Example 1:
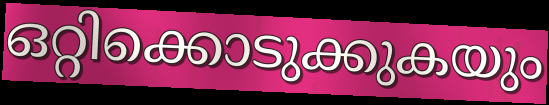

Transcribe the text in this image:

ഒറ്റിക്കൊടുക്കുകയും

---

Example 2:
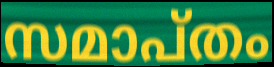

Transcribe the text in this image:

സമാപ്തം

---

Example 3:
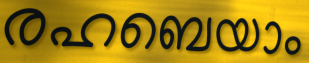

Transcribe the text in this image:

രഹബെയാം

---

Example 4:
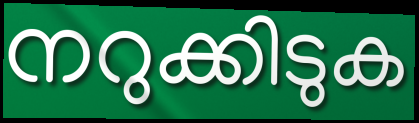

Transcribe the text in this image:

നറുക്കിടുക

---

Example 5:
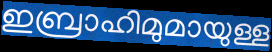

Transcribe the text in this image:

ഇബ്രാഹിമുമായുള്ള